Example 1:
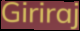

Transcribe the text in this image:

Giriraj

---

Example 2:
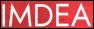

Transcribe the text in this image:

IMDEA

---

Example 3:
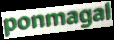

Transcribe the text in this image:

ponmagal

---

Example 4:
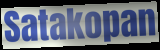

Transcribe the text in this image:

Satakopan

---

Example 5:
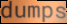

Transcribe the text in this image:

dumps